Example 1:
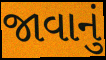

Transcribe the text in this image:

જાવાનું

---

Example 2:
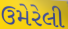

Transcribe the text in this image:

ઉમેરેલી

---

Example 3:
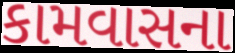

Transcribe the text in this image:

કામવાસના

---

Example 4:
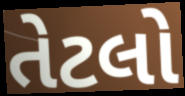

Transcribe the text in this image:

તેટલો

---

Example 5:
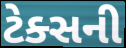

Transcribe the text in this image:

ટેક્સની